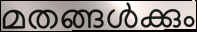
മതങ്ങൾക്കും